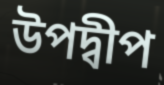
উপদ্বীপ